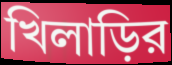
খিলাড়ির